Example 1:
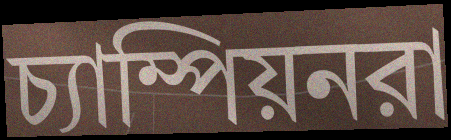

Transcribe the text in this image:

চ্যাম্পিয়নরা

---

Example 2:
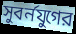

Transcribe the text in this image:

সুবর্নযুগের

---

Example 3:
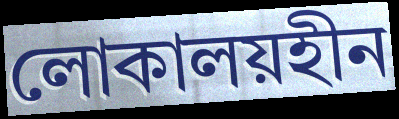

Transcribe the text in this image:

লোকালয়হীন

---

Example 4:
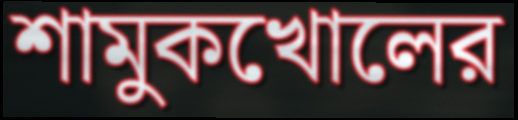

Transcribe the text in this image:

শামুকখোলের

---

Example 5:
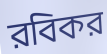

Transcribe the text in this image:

রবিকর